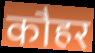
कौहर